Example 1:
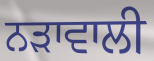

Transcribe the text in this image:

ਨੜਾਵਾਲੀ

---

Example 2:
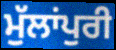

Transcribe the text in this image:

ਮੁੱਲਾਂਪੁਰੀ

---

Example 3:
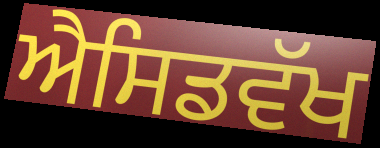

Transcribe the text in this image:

ਐਸਿਡਵੱਖ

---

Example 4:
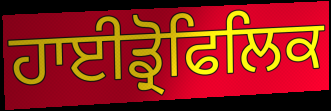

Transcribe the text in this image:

ਹਾਈਡ੍ਰੋਫਿਲਿਕ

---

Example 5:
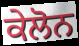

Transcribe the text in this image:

ਕੇਲੋਨ